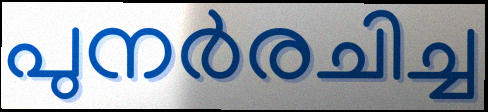
പുനർരചിച്ച